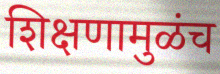
शिक्षणामुळंच